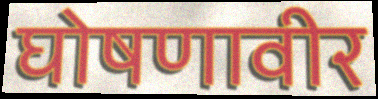
घोषणावीर